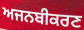
ਅਜਨਬੀਕਰਣ